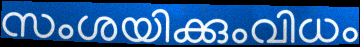
സംശയിക്കുംവിധം